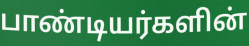
பாண்டியர்களின்